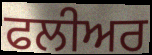
ਫਲੀਅਰ